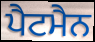
ਪੈਟਮੈਨ